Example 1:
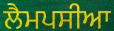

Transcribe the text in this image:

ਲੈਮਪਸੀਆ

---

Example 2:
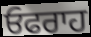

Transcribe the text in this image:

ਓਫਰਾਹ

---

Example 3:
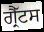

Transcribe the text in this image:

ਗ੍ਰੈੱਟਸ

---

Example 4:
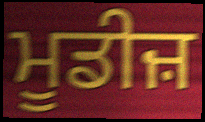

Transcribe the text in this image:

ਮੂਡੀਜ਼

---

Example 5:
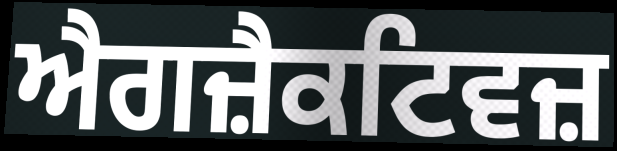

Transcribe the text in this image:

ਐਗਜ਼ੈਕਟਿਵਜ਼